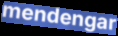
mendengar